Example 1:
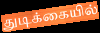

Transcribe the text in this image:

துடிக்கையில்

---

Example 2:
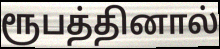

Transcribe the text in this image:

ரூபத்தினால்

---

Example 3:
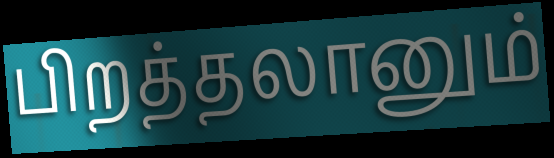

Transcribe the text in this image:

பிறத்தலானும்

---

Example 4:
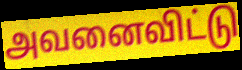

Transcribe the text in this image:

அவனைவிட்டு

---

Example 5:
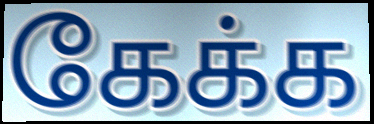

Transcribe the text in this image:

கேக்க